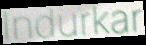
Indurkar